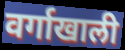
वर्गाखाली